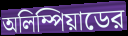
অলিম্পিয়াডের